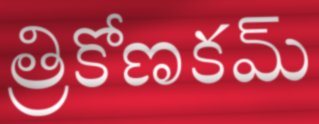
త్రికోణకమ్